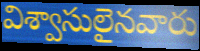
విశ్వాసులైనవారు